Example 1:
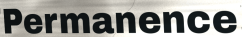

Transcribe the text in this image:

Permanence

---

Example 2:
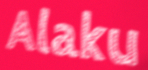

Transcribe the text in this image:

Alaku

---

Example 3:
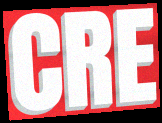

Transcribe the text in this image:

CRE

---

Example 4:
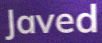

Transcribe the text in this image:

Javed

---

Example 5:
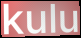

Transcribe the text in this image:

kulu